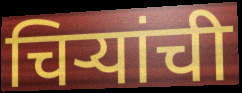
चिऱ्यांची